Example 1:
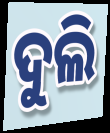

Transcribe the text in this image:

ଦୁଲି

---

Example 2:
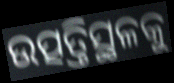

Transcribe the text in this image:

ଉତ୍ପତ୍ତିସ୍ଥଳକୁ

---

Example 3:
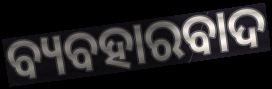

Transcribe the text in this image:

ବ୍ୟବହାରବାଦ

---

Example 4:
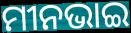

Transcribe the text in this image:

ମୀନଭାଇ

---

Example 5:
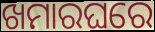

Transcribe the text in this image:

ଖମାରଘରେ